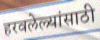
हरवलेल्यांसाठी